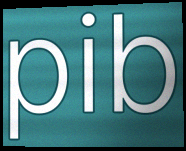
pib